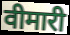
वीमारी